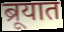
ब्रूयात